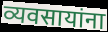
व्यवसायांना